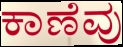
ಕಾಣೆವು